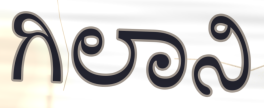
ಗಿಲಾನಿ